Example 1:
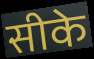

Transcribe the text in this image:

सीके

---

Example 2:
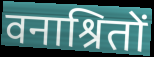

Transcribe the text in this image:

वनाश्रितों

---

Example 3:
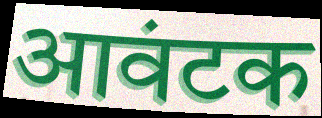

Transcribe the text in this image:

आवंटक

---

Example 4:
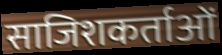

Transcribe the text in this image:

साजिशकर्ताओं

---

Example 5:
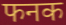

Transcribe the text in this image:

फनक